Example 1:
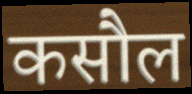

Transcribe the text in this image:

कसौल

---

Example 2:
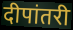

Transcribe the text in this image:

दीपांतरी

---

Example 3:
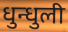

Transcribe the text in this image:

धुन्धुली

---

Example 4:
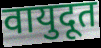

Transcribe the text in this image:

वायुदूत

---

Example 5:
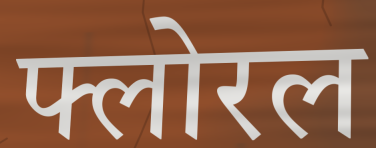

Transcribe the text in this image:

फ्लोरल